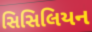
સિસિલિયન